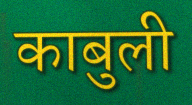
काबुली